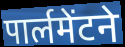
पार्लमेंटने